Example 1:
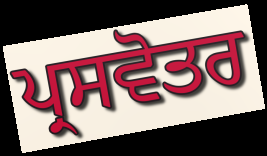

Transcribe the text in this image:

ਪ੍ਰਸਵੋਤਰ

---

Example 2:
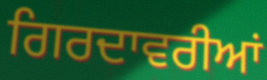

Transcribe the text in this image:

ਗਿਰਦਾਵਰੀਆਂ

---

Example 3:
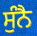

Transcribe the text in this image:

ਸੁੰਨੈ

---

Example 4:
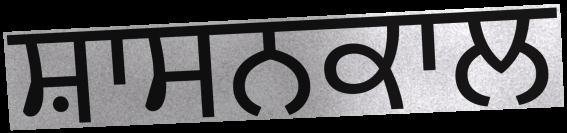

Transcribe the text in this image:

ਸ਼ਾਸਨਕਾਲ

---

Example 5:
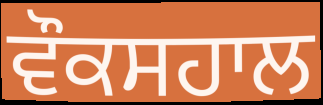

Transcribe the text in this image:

ਵੌਕਸਹਾਲ